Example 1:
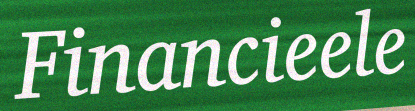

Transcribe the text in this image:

Financieele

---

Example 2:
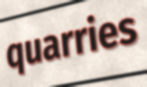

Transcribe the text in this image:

quarries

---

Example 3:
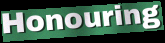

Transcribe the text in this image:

Honouring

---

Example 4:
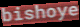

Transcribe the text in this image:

bishoye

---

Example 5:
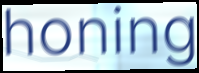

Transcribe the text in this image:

honing